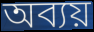
অব্যয়